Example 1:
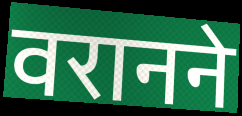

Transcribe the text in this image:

वरानने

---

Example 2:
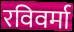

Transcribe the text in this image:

रविवर्मा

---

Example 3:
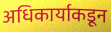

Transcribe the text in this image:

अधिकार्याकडून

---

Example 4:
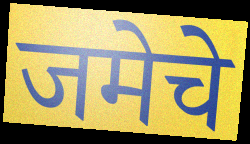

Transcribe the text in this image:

जमेचे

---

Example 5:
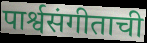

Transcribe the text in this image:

पार्श्वसंगीताची